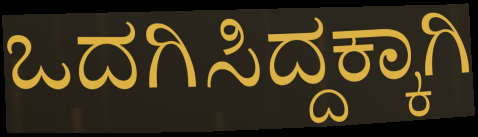
ಒದಗಿಸಿದ್ದಕ್ಕಾಗಿ